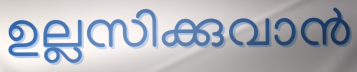
ഉല്ലസിക്കുവാൻ